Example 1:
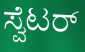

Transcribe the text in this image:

ಸ್ವೆಟರ್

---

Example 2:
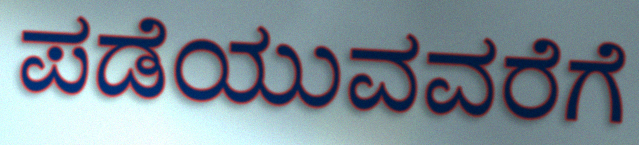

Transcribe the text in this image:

ಪಡೆಯುವವರೆಗೆ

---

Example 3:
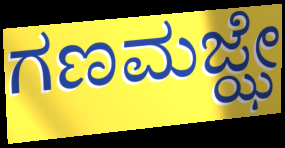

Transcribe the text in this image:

ಗಣಮಜ್ಝೇ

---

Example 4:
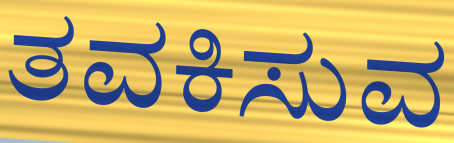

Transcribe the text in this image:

ತವಕಿಸುವ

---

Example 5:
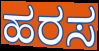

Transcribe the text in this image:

ಹರಸ